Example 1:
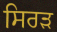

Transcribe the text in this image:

ਸਿਰਡ਼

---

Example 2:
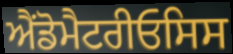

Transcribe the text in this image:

ਐਂਡੋਮੈਟਰੀਓਸਿਸ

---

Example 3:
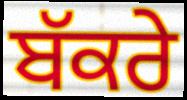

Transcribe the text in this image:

ਬੱਕਰੇ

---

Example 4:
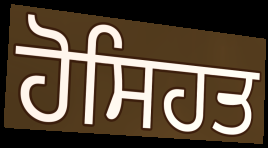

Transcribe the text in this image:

ਹੋਸਿਹਤ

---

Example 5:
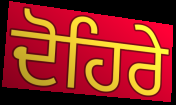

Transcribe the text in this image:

ਦੋਹਿਰੇ